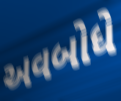
અવબોધે